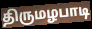
திருமழபாடி